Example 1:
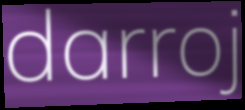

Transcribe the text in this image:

darroj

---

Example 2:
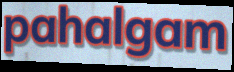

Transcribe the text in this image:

pahalgam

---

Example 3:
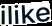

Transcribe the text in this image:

ilike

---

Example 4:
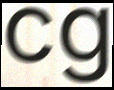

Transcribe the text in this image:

cg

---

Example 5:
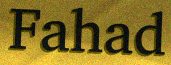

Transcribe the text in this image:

Fahad